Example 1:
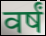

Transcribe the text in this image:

वर्षं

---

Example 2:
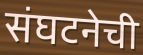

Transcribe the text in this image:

संघटनेची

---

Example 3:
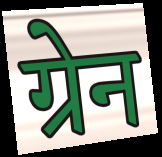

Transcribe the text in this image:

ग्रेन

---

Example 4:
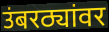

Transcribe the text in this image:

उंबरठ्यांवर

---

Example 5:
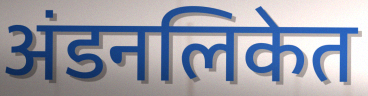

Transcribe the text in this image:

अंडनलिकेत